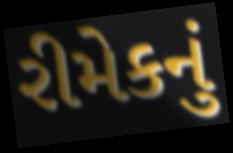
રીમેકનું